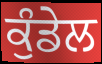
ਕੁੰਡੇਲ